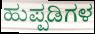
ಹುಪ್ಪಡಿಗಳ